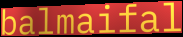
balmaifal